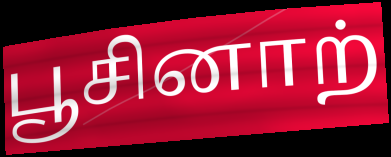
பூசினாற்